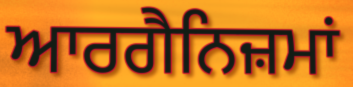
ਆਰਗੈਨਿਜ਼ਮਾਂ